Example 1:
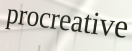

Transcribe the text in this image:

procreative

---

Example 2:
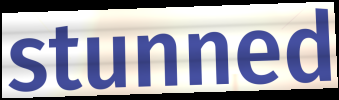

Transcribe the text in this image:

stunned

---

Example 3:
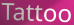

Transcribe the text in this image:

Tattoo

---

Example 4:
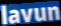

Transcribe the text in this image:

lavun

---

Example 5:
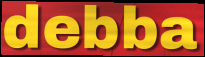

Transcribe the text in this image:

debba